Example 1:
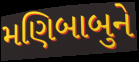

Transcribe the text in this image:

મણિબાબુને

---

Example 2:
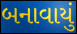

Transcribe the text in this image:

બનાવાયું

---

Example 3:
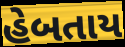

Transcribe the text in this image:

હેબતાય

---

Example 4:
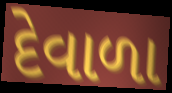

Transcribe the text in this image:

દેવાળા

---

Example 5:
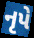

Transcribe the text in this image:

નૃપે